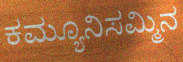
ಕಮ್ಯೂನಿಸಮ್ಮಿನ